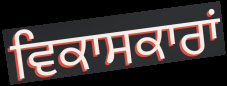
ਵਿਕਾਸਕਾਰਾਂ